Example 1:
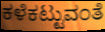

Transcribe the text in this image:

ಕಳೆಕಟ್ಟುವಂತೆ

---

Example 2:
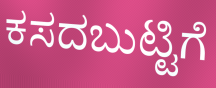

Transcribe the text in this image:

ಕಸದಬುಟ್ಟಿಗೆ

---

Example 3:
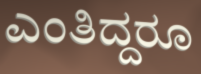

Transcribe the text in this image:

ಎಂತಿದ್ದರೂ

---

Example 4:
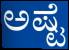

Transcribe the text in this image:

ಅಷ್ಟೆ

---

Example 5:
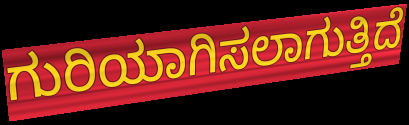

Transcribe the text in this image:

ಗುರಿಯಾಗಿಸಲಾಗುತ್ತಿದೆ